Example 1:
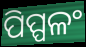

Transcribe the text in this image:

ପିପ୍ପଳଂ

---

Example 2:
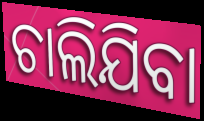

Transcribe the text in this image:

ଚାଲିଯିବା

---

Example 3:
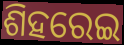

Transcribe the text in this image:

ଶିହରେଇ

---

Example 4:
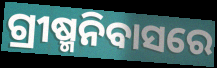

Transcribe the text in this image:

ଗ୍ରୀଷ୍ମନିବାସରେ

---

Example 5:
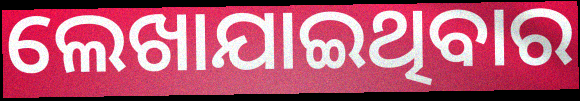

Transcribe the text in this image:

ଲେଖାଯାଇଥିବାର